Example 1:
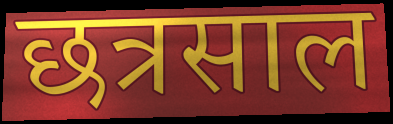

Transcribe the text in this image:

छत्रसाल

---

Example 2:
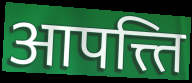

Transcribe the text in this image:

आपत्त्ति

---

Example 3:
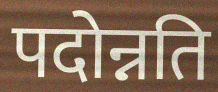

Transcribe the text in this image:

पदोन्नति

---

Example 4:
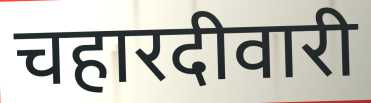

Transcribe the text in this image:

चहारदीवारी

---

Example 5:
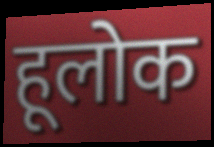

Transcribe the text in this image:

हूलोक